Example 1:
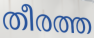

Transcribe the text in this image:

തീരത്ത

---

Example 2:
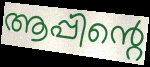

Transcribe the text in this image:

ആൎപ്പിന്റെ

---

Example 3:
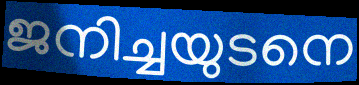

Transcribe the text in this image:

ജനിച്ചയുടനെ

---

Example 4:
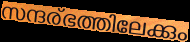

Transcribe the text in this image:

സന്ദര്ഭത്തിലേക്കും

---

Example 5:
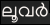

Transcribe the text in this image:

ലൂവർ